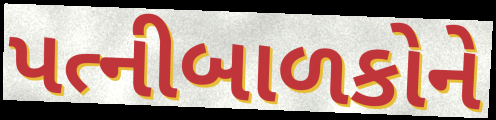
પત્નીબાળકોને